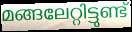
മങ്ങലേറ്റിട്ടുണ്ട്